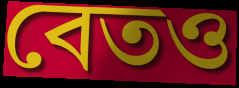
বেতও